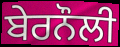
ਬੇਰਨੌਲੀ